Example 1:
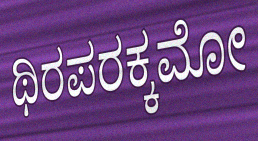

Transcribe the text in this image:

ಥಿರಪರಕ್ಕಮೋ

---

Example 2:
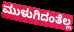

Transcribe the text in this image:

ಮುಳುಗಿದಂತೆಲ್ಲ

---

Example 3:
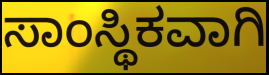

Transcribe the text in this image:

ಸಾಂಸ್ಥಿಕವಾಗಿ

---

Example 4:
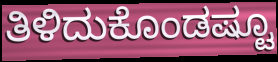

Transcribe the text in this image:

ತಿಳಿದುಕೊಂಡಷ್ಟೂ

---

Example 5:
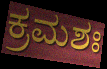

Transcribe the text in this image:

ಕ್ರಮಶಃ